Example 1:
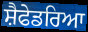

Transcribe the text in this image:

ਸ਼ੈਫੇਡਰਿਆ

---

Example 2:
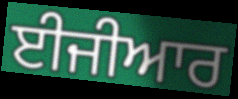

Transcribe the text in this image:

ਈਜੀਆਰ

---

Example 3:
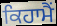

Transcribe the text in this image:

ਕਿਹਾਮੈਂ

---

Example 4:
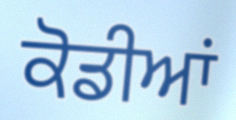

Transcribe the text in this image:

ਕੋਡੀਆਂ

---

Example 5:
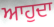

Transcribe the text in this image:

ਆਹੁਦਾ